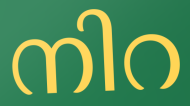
നിറ